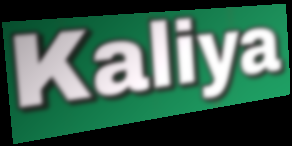
Kaliya